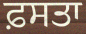
ਫ਼ਸਤਾ